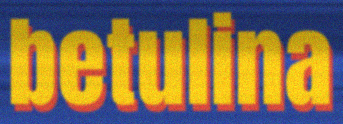
betulina